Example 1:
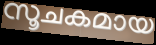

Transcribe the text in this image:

സൂചകമായ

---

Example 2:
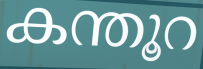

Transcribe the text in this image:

കന്തൂറ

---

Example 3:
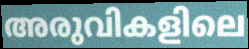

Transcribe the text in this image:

അരുവികളിലെ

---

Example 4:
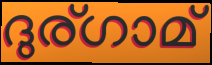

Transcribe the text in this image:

ദുര്ഗാമ്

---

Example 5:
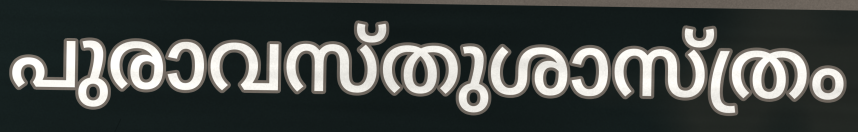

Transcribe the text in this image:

പുരാവസ്തുശാസ്ത്രം